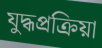
যুদ্ধপ্রক্রিয়া